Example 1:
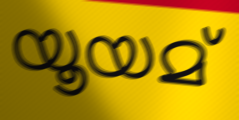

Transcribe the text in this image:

യൂയമ്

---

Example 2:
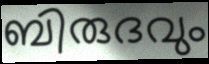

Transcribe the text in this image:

ബിരുദവും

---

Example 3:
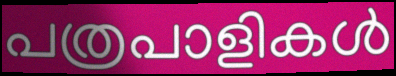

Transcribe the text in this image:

പത്രപാളികൾ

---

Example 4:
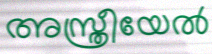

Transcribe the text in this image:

അസ്ത്രീയേൽ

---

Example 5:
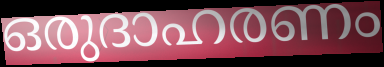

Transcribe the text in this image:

ഒരുദാഹരണം